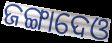
ଜଙ୍ଗାଦେଓ